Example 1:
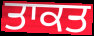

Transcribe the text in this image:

ਤਾਕਤ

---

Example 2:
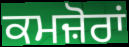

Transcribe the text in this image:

ਕਮਜ਼ੋਰਾਂ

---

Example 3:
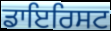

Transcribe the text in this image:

ਡਾਇਰਿਸਟ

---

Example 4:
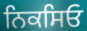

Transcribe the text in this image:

ਨਿਕਸਿਓ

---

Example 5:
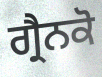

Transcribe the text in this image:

ਗ੍ਰੈਨਕੋ